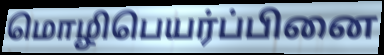
மொழிபெயர்ப்பினை